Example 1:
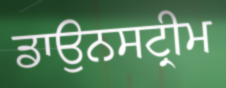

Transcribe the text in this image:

ਡਾਉਨਸਟ੍ਰੀਮ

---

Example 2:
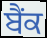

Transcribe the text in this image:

ਬੈਂਕ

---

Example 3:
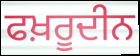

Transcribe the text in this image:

ਫਖ਼ਰੂਦੀਨ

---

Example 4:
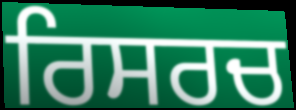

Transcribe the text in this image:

ਰਿਸਰਚ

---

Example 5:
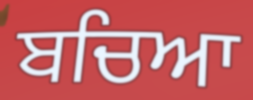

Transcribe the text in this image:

ਬਚਿਆ